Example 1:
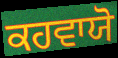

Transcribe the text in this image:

ਕਹਵਾਯੋ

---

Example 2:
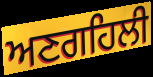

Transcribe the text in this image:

ਅਣਗਹਿਲੀ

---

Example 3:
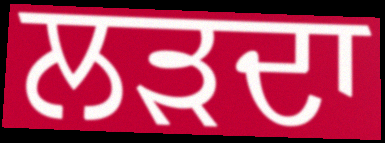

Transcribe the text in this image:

ਲੜਦਾ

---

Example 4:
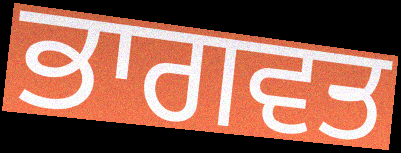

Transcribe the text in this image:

ਭਾਗਵਤ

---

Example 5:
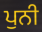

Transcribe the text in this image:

ਪੁਨੀ